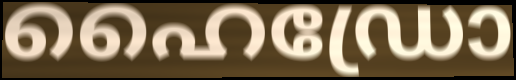
ഹൈഡ്രോ